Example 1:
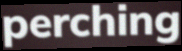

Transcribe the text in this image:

perching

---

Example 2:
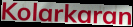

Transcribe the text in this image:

Kolarkaran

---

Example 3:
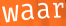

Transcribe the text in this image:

waar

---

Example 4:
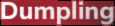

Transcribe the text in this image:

Dumpling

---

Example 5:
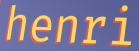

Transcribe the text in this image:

henri